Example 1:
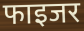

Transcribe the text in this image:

फाइजर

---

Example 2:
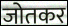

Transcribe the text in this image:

जोतकर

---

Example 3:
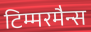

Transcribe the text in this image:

टिम्मरमैन्स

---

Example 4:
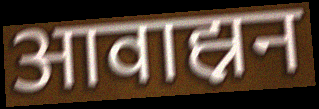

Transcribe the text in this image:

आवाह्नन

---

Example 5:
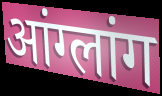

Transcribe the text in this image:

आंग्लांग